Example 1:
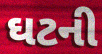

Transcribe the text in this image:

ઘટની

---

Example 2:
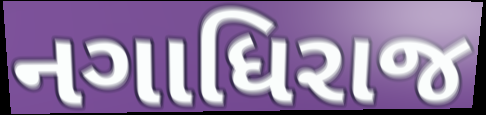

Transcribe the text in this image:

નગાધિરાજ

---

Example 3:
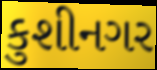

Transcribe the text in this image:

કુશીનગર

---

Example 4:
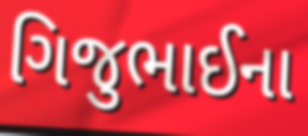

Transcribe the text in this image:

ગિજુભાઈના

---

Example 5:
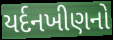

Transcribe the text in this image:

યર્દનખીણનો